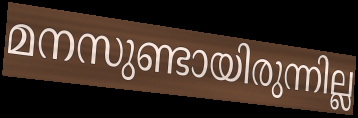
മനസുണ്ടായിരുന്നില്ല